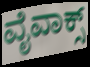
ವೈವಾಕ್ಸ್